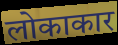
लोकाकार